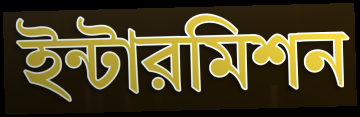
ইন্টারমিশন